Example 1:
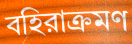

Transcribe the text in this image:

বহিরাক্রমণ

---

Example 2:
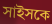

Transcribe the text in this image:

সাইসকে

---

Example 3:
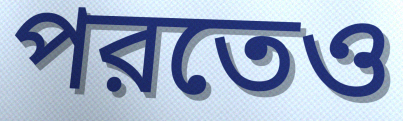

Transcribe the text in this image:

পরতেও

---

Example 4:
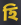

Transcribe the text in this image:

হি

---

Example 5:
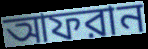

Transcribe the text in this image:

আফরান